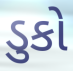
ડુકો